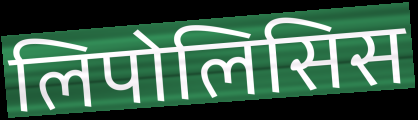
लिपोलिसिस